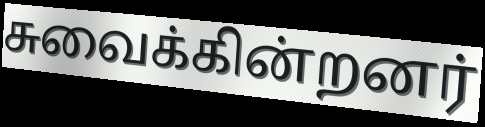
சுவைக்கின்றனர்